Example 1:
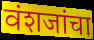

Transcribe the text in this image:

वंशजांचा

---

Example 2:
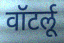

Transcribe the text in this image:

वॉटर्लू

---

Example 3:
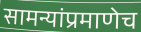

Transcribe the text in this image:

सामन्यांप्रमाणेच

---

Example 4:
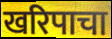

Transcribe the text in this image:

खरिपाचा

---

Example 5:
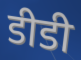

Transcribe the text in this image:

डीडी